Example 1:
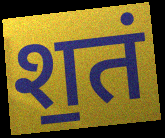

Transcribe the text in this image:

श॒तं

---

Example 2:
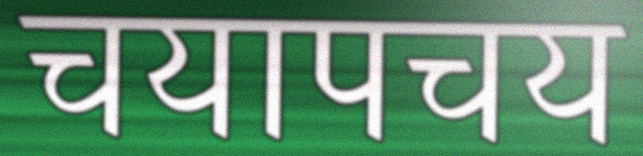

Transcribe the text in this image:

चयापचय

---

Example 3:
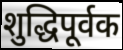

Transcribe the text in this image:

शुद्धिपूर्वक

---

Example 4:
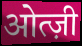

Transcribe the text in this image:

ओत्ज़ी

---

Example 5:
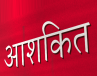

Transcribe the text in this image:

आशकित